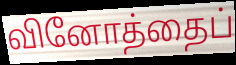
வினோத்தைப்